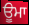
ਊਮਾ